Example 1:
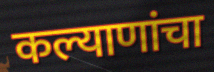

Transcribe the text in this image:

कल्याणांचा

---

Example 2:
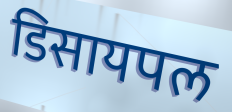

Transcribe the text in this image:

डिसायपल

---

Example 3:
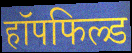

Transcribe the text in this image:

हॉपफिल्ड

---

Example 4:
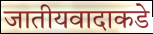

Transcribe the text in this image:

जातीयवादाकडे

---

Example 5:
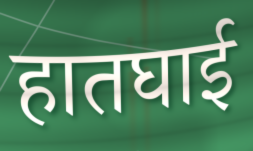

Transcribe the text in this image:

हातघाई